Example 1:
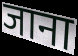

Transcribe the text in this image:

जाना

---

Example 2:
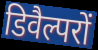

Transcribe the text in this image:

डिवैल्परों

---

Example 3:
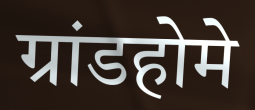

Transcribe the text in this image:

ग्रांडहोमे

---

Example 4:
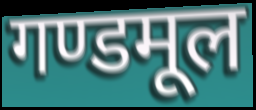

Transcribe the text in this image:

गण्डमूल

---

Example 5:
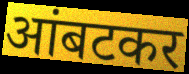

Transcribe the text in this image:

आंबटकर